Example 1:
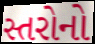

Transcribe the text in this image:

સ્તરોનો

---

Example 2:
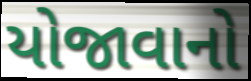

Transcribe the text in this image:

યોજાવાનો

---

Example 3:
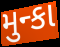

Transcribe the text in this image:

મુન્કા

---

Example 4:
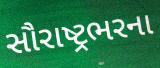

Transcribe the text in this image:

સૌરાષ્ટ્રભરના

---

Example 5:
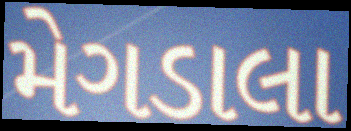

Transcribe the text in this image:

મેગડાલા